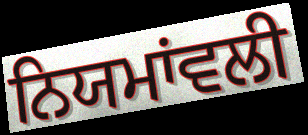
ਨਿਯਮਾਂਵਲੀ